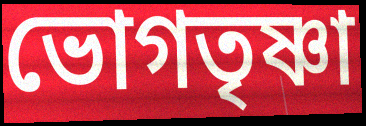
ভোগতৃষ্ণা